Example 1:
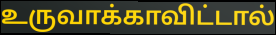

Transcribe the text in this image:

உருவாக்காவிட்டால்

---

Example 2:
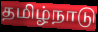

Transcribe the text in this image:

தமிழ்நாடு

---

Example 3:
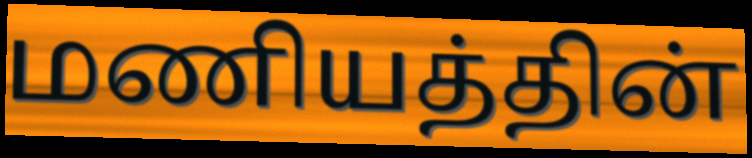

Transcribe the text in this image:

மணியத்தின்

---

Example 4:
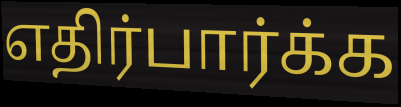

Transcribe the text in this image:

எதிர்பார்க்க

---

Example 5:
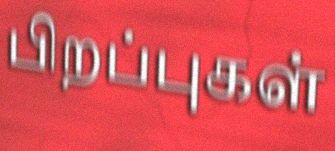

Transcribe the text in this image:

பிறப்புகள்